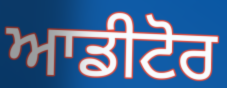
ਆਡੀਟੋਰ